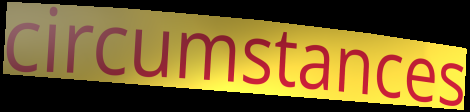
circumstances